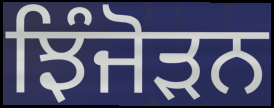
ਝਿੰਜੋੜਨ